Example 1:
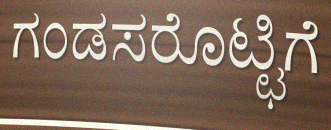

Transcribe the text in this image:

ಗಂಡಸರೊಟ್ಟಿಗೆ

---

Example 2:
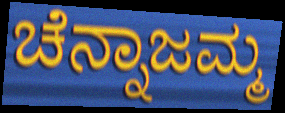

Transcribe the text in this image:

ಚೆನ್ನಾಜಮ್ಮ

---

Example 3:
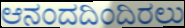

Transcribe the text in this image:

ಆನಂದದಿಂದಿರಲು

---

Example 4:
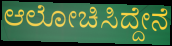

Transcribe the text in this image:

ಆಲೋಚಿಸಿದ್ದೇನೆ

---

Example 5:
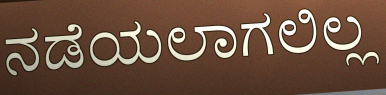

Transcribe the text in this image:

ನಡೆಯಲಾಗಲಿಲ್ಲ